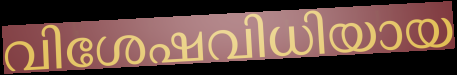
വിശേഷവിധിയായ